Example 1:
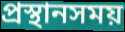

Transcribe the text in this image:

প্রস্থানসময়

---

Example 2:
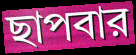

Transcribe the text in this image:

ছাপবার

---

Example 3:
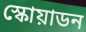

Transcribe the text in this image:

স্কোয়াডন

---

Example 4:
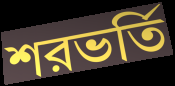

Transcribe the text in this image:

শরভর্তি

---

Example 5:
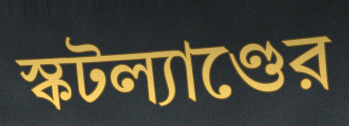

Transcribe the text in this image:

স্কটল্যাণ্ডের